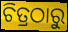
ଚିତ୍ରଠାରୁ